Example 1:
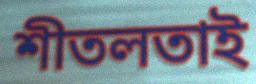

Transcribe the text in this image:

শীতলতাই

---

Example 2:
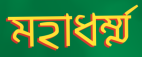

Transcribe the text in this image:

মহাধর্ম্ম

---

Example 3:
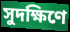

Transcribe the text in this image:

সুদক্ষিণে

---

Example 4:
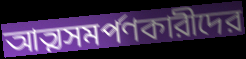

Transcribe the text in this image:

আত্মসমর্পণকারীদের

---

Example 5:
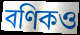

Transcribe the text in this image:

বণিকও